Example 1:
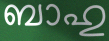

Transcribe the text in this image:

ബാഹു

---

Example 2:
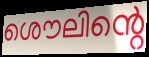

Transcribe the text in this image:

ശൌലിന്റെ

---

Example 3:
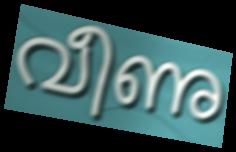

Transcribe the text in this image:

വീണു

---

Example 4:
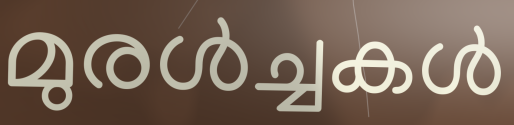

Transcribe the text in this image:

മുരൾച്ചകൾ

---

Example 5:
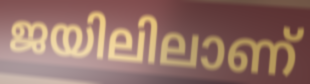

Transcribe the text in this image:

ജയിലിലാണ്